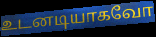
உடனடியாகவோ